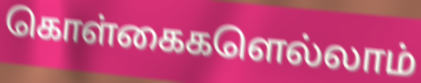
கொள்கைகளெல்லாம்